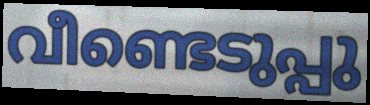
വീണ്ടെടുപ്പു